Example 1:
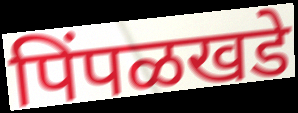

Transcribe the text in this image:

पिंपळखडे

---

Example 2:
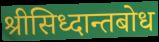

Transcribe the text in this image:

श्रीसिध्दान्तबोध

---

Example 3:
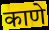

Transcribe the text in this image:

काणे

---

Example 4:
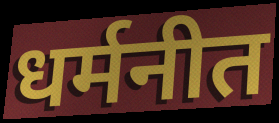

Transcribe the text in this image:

धर्मनीत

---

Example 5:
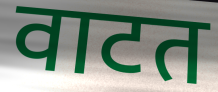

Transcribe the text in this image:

वाटत